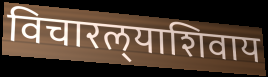
विचारल्याशिवाय